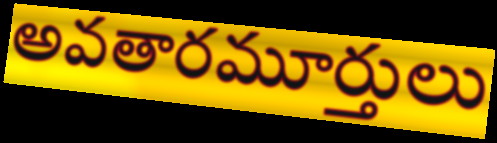
అవతారమూర్తులు